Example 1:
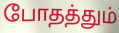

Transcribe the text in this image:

போதத்தும்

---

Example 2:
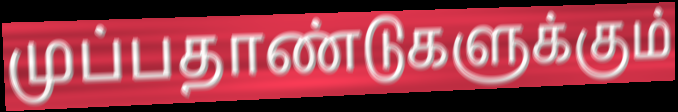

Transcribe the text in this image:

முப்பதாண்டுகளுக்கும்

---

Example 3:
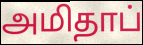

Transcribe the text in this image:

அமிதாப்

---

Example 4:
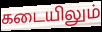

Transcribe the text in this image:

கடையிலும்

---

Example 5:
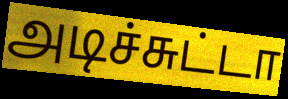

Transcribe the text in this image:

அடிச்சுட்டா